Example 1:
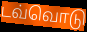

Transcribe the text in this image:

டவ்வொடு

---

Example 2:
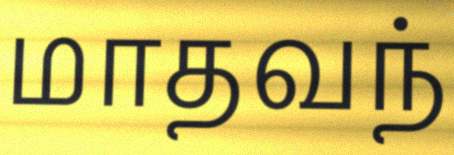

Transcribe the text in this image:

மாதவந்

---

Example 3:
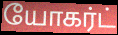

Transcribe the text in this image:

யோகர்ட்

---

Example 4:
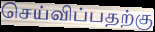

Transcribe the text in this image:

செய்விப்பதற்கு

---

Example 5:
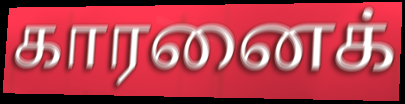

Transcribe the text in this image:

காரனைக்